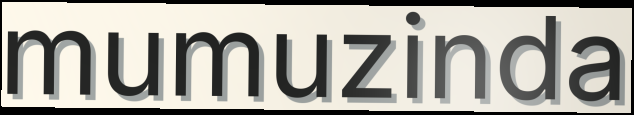
mumuzinda